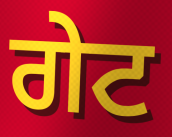
ਗੇਟ